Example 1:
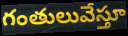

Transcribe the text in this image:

గంతులువేస్తూ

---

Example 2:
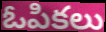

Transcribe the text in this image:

ఓపికలు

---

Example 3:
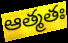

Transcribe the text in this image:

ఆత్మతః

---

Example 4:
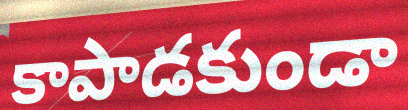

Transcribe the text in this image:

కాపాడకుండా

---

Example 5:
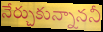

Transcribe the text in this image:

నేర్చుకున్నాననీ